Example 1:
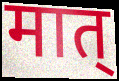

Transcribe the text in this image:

मात्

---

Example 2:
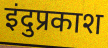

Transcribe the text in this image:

इंदुप्रकाश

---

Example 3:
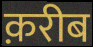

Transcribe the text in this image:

क़रीब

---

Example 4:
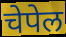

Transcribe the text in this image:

चेपेल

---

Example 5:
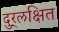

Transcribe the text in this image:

दुर्लक्षित